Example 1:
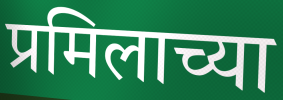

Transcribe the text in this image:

प्रमिलाच्या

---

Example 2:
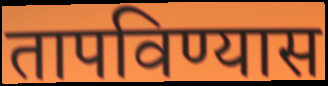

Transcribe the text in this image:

तापविण्यास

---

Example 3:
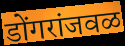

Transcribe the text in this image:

डोंगरांजवळ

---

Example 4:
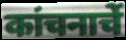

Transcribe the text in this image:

कांचनाचें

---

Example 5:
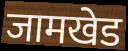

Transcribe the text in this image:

जामखेड